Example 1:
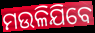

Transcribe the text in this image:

ମଉଳିଯିବେ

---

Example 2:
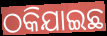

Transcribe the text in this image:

ଠକିଯାଇଛ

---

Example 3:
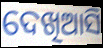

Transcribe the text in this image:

ଦେଖିଆସି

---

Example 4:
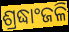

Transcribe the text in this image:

ଶ୍ରଦ୍ଧାଂଜଳି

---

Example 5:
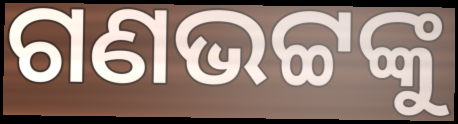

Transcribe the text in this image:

ଗଣଭଟ୍ଟଙ୍କୁ